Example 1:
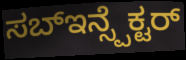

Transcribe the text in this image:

ಸಬ್ಇನ್ಸ್ಪೆಕ್ಟರ್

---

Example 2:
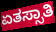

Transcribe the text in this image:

ಏತಸ್ಸಾತಿ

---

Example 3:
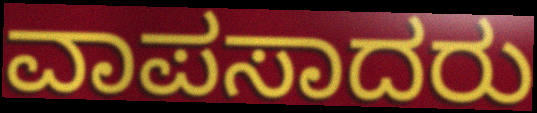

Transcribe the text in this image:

ವಾಪಸಾದರು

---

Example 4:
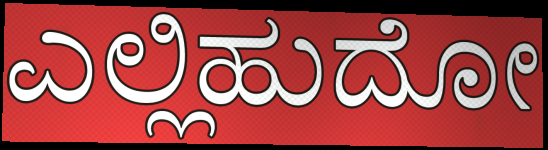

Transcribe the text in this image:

ಎಲ್ಲಿಹುದೋ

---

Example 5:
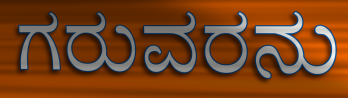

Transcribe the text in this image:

ಗರುವರನು